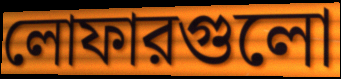
লোফারগুলো